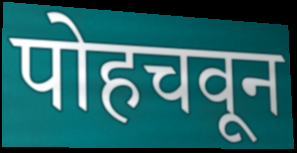
पोहचवून